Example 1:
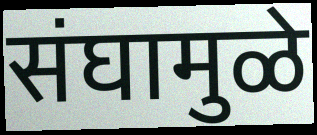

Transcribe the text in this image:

संघामुळे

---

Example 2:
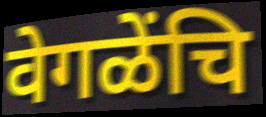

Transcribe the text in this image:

वेगळेंचि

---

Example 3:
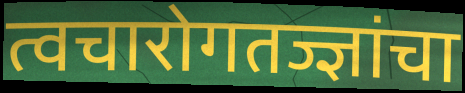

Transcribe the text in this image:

त्वचारोगतज्ज्ञांचा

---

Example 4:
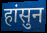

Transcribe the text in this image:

हांसुन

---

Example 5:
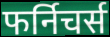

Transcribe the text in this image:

फर्निचर्स